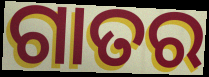
ଗାତର